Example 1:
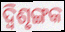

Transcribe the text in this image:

ଦ୍ବିଶୃଙ୍ଗକ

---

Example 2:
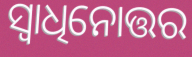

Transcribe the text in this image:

ସ୍ୱାଧିନୋତ୍ତର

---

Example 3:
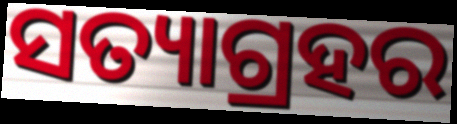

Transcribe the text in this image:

ସତ୍ୟାଗ୍ରହର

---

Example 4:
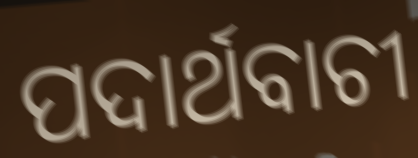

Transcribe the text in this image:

ପଦାର୍ଥବାଚୀ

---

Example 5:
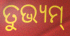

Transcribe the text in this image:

ତୁଭ୍ୟମ୍